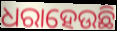
ଧରାହେଉଛି